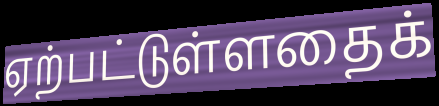
ஏற்பட்டுள்ளதைக்